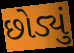
છોડ્યું